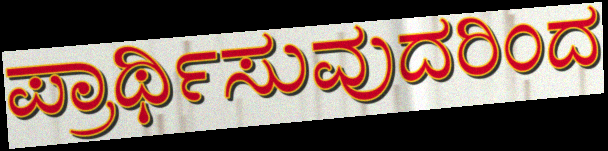
ಪ್ರಾರ್ಥಿಸುವುದರಿಂದ